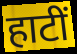
हाटीं